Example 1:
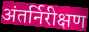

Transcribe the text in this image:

अंतर्निरीक्षण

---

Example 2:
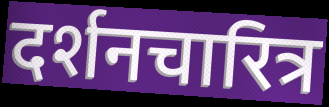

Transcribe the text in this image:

दर्शनचारित्र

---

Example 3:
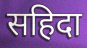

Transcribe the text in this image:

सहिदा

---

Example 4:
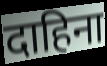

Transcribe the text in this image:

दाहिना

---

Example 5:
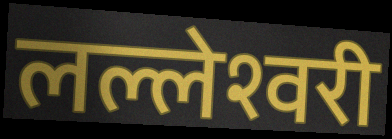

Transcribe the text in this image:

लल्लेश्वरी